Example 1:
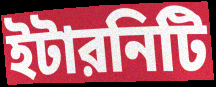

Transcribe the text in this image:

ইটারনিটি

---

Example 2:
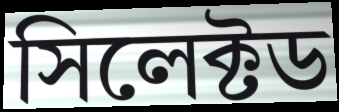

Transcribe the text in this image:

সিলেক্টড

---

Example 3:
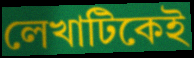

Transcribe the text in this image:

লেখাটিকেই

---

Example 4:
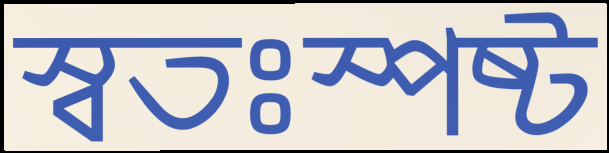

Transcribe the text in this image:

স্বতঃস্পষ্ট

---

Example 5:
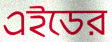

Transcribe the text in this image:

এইডের